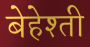
बेहेश्ती